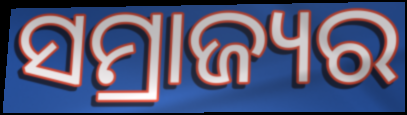
ସମ୍ରାଜ୍ୟର